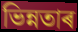
ভিন্নতাৰ